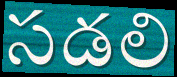
సడలి